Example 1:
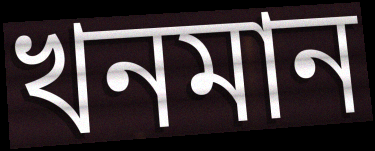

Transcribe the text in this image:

খনমান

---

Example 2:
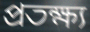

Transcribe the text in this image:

প্ৰতক্ষ্য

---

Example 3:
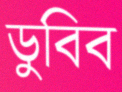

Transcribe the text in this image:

ডুবিব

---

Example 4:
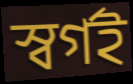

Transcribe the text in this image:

স্বৰ্গই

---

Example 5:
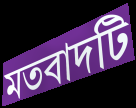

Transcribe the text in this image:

মতবাদটি